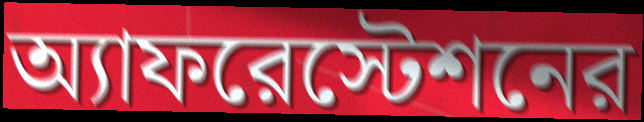
অ্যাফরেস্টেশনের